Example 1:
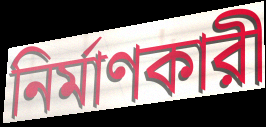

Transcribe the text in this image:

নির্মাণকারী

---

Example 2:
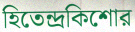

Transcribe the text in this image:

হিতেন্দ্রকিশোর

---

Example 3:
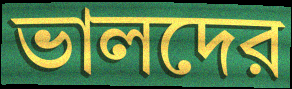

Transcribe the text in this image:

ভালদের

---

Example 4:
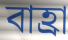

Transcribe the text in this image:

বাহ্রা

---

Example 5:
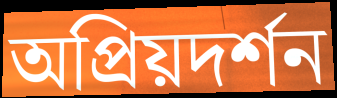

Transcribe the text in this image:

অপ্রিয়দর্শন